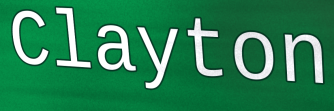
Clayton